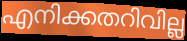
എനിക്കതറിവില്ല